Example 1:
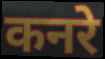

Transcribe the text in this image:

कनरे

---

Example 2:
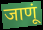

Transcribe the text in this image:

जाणूं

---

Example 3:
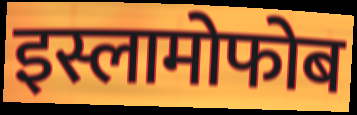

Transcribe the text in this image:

इस्लामोफोब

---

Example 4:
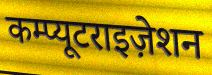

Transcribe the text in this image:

कम्प्यूटराइज़ेशन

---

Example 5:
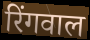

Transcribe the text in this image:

रिंगवाल